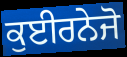
ਕੁਈਰਨੇਜੋ